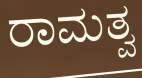
ರಾಮತ್ವ